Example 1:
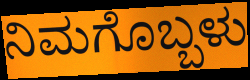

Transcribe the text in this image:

ನಿಮಗೊಬ್ಬಳು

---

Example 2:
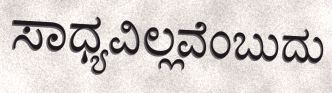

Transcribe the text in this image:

ಸಾಧ್ಯವಿಲ್ಲವೆಂಬುದು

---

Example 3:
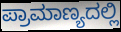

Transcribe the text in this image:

ಪ್ರಾಮಾಣ್ಯದಲ್ಲಿ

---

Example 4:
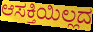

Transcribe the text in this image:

ಆಸಕ್ತಿಯಿಲ್ಲದ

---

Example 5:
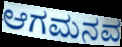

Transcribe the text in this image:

ಆಗಮನವ